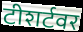
टीशर्टवर